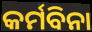
କର୍ମବିନା